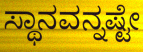
ಸ್ಥಾನವನ್ನಷ್ಟೇ